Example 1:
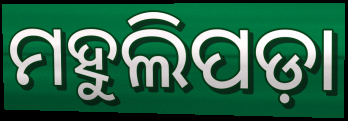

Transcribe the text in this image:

ମହୁଲିପଡ଼ା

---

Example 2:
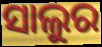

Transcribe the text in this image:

ସାଲୁର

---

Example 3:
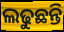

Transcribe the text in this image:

ଲଢୁଛନ୍ତି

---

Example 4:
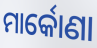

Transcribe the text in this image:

ମାର୍କୋଣା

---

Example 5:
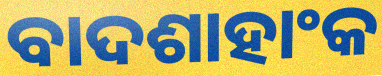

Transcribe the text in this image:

ବାଦଶାହାଂକ